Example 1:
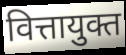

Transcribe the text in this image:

वित्तायुक्त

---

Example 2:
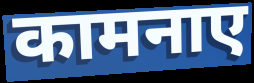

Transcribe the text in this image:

कामनाए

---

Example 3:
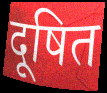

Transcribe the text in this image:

दूषित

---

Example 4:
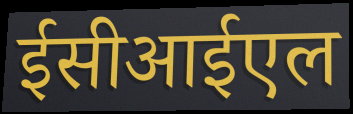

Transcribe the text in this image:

ईसीआईएल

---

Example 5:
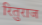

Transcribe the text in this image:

रितुराज